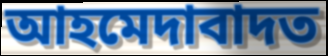
আহমেদাবাদত